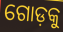
ଗୋଡ଼କୁ